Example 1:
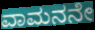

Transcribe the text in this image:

ವಾಮನನೇ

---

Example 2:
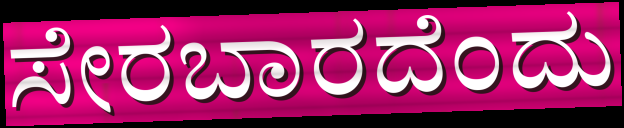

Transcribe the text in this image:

ಸೇರಬಾರದೆಂದು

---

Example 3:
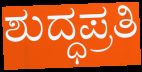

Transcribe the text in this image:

ಶುದ್ಧಪ್ರತಿ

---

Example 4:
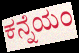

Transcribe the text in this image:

ಕನ್ನೆಯಂ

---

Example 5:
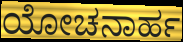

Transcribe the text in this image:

ಯೋಚನಾರ್ಹ